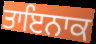
ਤਾਇਨਾਕ